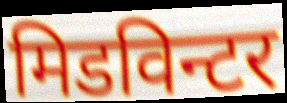
मिडविन्टर